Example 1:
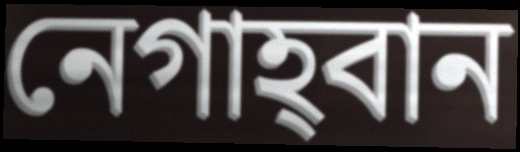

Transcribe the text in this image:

নেগাহ্‌বান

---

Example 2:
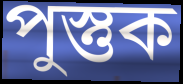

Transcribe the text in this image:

পুস্তুক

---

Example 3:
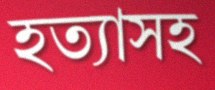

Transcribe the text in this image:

হত্যাসহ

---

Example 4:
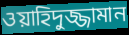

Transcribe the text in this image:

ওয়াহিদুজ্জামান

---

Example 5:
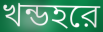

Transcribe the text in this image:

খন্ডহরে